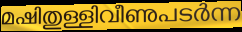
മഷിതുള്ളിവീണുപടർന്ന